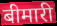
बीमारी